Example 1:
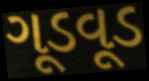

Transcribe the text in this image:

ગૂડવૂડ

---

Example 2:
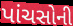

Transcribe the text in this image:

પાંચસોની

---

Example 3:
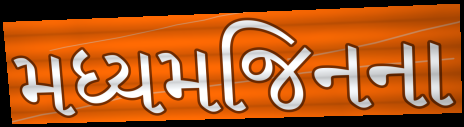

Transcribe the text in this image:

મધ્યમજિનના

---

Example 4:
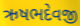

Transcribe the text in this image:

ઋષભદેવજી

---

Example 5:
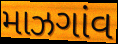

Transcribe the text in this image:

માઝગાંવ